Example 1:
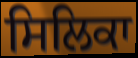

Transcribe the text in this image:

ਸਿਲਿਕਾ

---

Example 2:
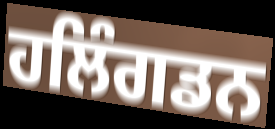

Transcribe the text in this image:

ਹਲਿੰਗਡਨ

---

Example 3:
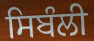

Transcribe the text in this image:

ਸਿਬੰਲੀ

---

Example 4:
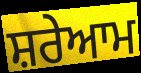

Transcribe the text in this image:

ਸ਼ਰੇਆਮ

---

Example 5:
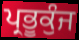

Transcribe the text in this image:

ਪ੍ਰਭੂਕੁੰਜ